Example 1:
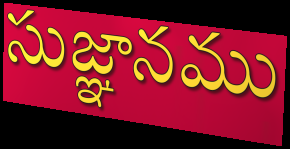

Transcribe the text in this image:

సుజ్ఞానము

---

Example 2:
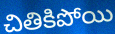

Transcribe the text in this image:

చితికిపోయి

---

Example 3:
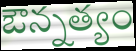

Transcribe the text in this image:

ఔన్నత్యం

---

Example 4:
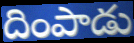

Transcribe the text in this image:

దింపాడు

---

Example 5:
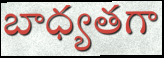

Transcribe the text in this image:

బాధ్యతగా